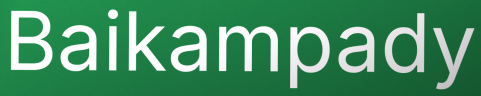
Baikampady